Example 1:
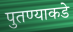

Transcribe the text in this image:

पुतण्याकडे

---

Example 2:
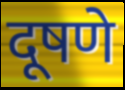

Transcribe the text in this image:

दूषणे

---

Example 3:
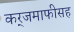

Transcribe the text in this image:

कर्जमाफीसह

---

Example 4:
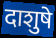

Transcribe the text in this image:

दाशुषे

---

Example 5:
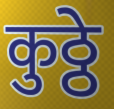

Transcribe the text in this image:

कुठ्ठे